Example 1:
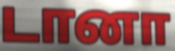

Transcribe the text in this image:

டானா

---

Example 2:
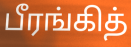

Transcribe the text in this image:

பீரங்கித்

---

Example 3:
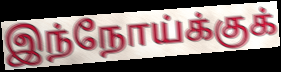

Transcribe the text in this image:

இந்நோய்க்குக்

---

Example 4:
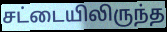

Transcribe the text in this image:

சட்டையிலிருந்த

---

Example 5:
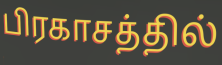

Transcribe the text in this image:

பிரகாசத்தில்